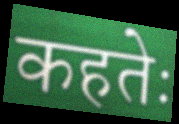
कहतेः